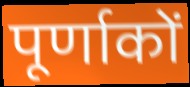
पूर्णाकों